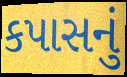
કપાસનું